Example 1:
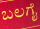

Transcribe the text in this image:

ಬಲಗೈ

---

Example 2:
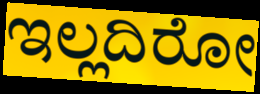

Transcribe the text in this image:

ಇಲ್ಲದಿರೋ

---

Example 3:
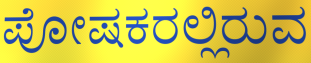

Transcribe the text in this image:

ಪೋಷಕರಲ್ಲಿರುವ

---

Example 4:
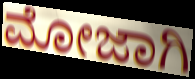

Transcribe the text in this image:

ಮೋಜಾಗಿ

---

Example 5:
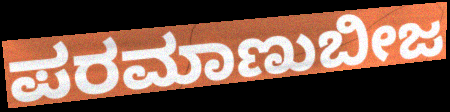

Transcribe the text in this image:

ಪರಮಾಣುಬೀಜ